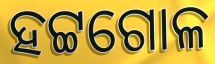
ହଟ୍ଟଗୋଳ